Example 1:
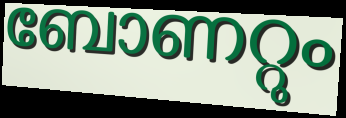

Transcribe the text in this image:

ബോണറ്റും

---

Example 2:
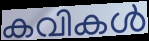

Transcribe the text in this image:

കവികൾ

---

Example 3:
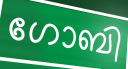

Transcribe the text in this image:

ഗോബി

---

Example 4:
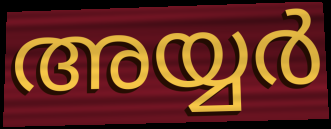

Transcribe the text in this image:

അയ്യർ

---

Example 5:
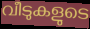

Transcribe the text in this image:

വീടുകളുടെ